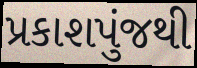
પ્રકાશપુંજથી